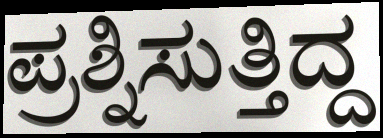
ಪ್ರಶ್ನಿಸುತ್ತಿದ್ದ